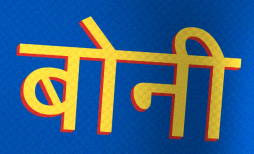
बोनी